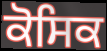
ਕੋਸਿਕ